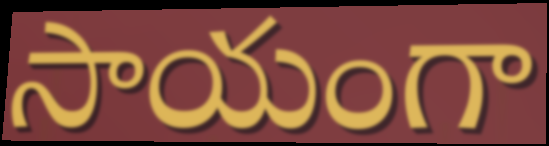
సాయంగా